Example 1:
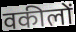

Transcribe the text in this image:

वकीलों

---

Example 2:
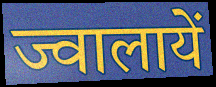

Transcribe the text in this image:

ज्वालायें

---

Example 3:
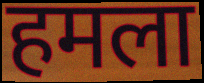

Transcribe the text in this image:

हमला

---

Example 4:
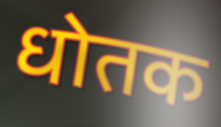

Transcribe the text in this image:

धोतक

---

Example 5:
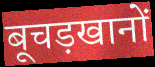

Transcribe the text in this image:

बूचड़खानों